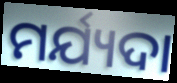
ମର୍ଯ୍ୟଦା